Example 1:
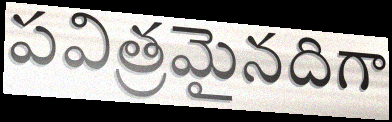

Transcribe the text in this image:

పవిత్రమైనదిగా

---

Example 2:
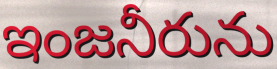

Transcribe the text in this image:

ఇంజనీరును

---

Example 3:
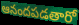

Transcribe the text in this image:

ఆనందపడతారో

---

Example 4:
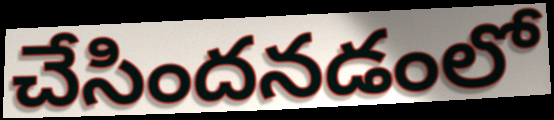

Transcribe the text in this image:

చేసిందనడంలో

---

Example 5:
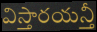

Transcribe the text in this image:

విస్తారయన్తీ